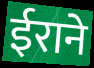
ईराने